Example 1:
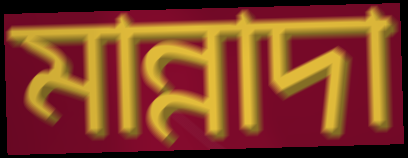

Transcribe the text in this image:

মান্নাদা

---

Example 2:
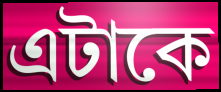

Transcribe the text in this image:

এটাকে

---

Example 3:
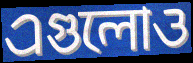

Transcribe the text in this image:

এগুলোও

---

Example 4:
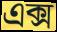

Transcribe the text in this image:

এক্স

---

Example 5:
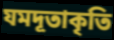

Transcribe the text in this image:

যমদূতাকৃতি